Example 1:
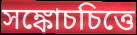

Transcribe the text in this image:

সঙ্কোচচিত্তে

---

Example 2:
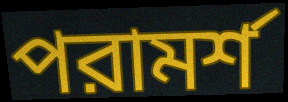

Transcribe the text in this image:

পরামর্শ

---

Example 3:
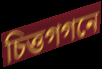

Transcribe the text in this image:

চিত্তগগনে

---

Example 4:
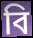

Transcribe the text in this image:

বি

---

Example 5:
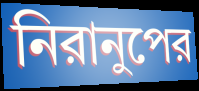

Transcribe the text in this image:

নিরানুপের